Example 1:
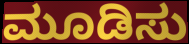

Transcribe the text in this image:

ಮೂಡಿಸು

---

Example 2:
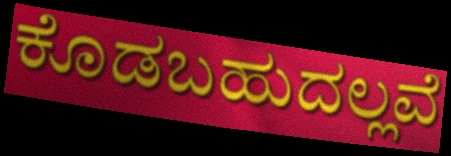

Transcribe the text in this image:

ಕೊಡಬಹುದಲ್ಲವೆ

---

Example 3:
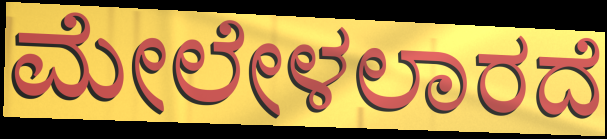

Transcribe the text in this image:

ಮೇಲೇಳಲಾರದೆ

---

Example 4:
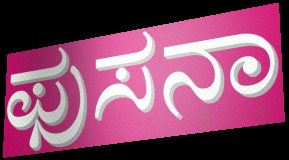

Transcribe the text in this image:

ಫುಸನಾ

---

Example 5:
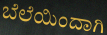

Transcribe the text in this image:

ಬೆಲೆಯಿಂದಾಗಿ